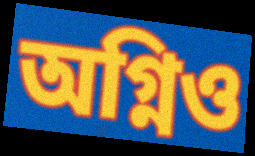
অগ্নিও